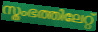
സ്തംഭത്തിലേറ്റ്